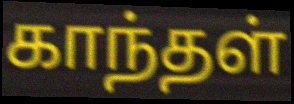
காந்தள்